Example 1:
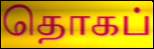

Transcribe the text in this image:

தொகப்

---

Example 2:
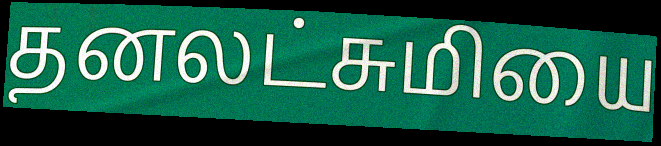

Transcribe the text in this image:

தனலட்சுமியை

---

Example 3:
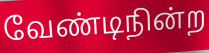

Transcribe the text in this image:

வேண்டிநின்ற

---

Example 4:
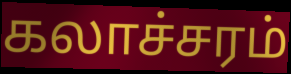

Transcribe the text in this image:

கலாச்சரம்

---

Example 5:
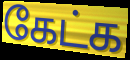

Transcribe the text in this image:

கேட்க